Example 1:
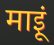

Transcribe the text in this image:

माइूं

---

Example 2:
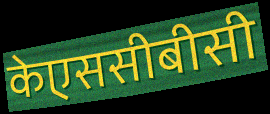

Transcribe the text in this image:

केएससीबीसी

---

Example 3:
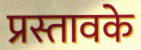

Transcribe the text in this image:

प्रस्तावके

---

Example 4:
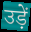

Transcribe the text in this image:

उड़ें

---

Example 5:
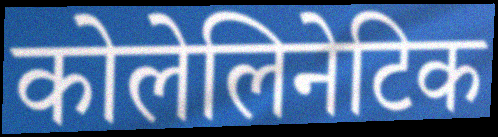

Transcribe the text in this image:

कोलेलिनेटिक